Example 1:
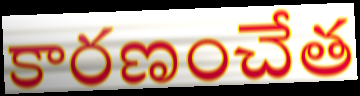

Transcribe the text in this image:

కారణంచేత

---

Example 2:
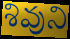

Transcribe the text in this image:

శివుని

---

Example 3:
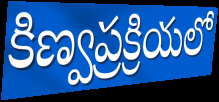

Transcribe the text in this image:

కిణ్వప్రక్రియలో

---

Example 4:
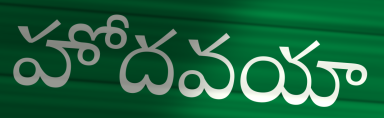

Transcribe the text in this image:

హోదవయా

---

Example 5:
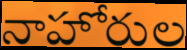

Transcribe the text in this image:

నాహోరుల